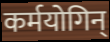
कर्मयोगिन्